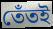
তেঁতই